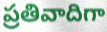
ప్రతివాదిగా